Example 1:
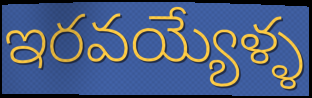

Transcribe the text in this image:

ఇరవయ్యేళ్ళ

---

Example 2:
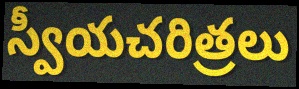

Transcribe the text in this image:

స్వీయచరిత్రలు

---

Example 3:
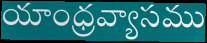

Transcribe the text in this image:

యాంధ్రవ్యాసము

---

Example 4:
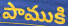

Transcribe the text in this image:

పాముకి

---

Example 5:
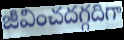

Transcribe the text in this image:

జీవించదగ్గదిగా